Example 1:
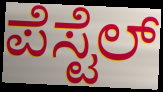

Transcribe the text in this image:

ಪೆಸ್ಟೆಲ್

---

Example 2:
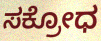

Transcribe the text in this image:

ಸಕ್ರೋಧ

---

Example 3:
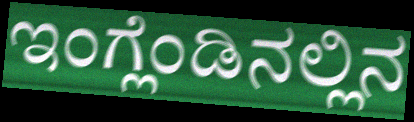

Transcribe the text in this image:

ಇಂಗ್ಲೆಂಡಿನಲ್ಲಿನ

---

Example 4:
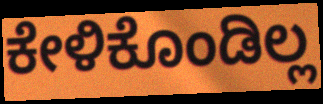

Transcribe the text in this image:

ಕೇಳಿಕೊಂಡಿಲ್ಲ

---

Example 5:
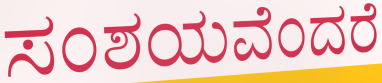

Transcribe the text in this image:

ಸಂಶಯವೆಂದರೆ